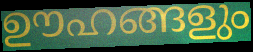
ഊഹങ്ങളും